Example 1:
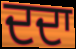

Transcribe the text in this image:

ਦਦਾ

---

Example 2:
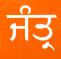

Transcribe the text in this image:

ਜੰਤ੍ਰ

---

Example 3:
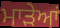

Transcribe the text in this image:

ਮਾੜੇਆਂ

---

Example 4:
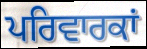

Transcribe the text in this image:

ਪਰਿਵਾਰਕਾਂ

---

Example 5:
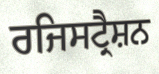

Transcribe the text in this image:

ਰਜਿਸਟ੍ਰੈਸ਼ਨ